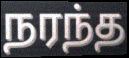
நரந்த